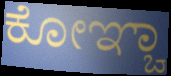
ಕೋಞ್ಚಾ